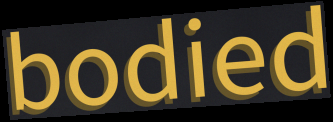
bodied